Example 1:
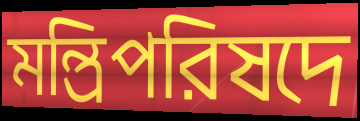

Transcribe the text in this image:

মন্ত্রিপরিষদে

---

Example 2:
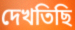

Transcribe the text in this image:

দেখতিছি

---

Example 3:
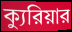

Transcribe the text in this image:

ক্যুরিয়ার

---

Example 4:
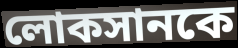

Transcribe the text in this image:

লোকসানকে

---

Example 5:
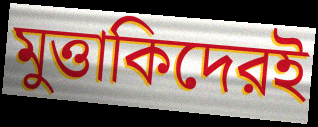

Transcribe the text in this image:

মুত্তাকিদেরই